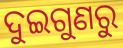
ଦୁଇଗୁଣରୁ